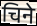
चिने